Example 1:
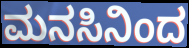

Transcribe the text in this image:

ಮನಸಿನಿಂದ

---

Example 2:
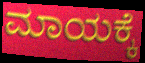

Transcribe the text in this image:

ಮಾಯಕ್ಕೆ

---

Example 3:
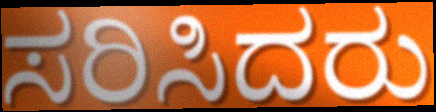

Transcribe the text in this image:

ಸರಿಸಿದರು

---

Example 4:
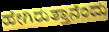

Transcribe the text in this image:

ಹೇಗಿರುತ್ತಾನೆಂದು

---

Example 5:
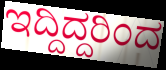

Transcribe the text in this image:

ಇದ್ದಿದ್ದರಿಂದ